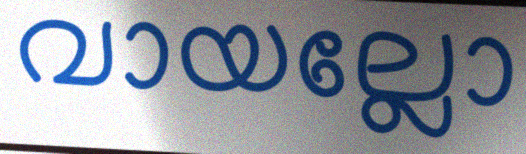
വായല്ലോ